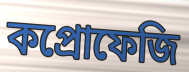
কপ্রোফেজি